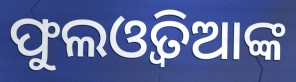
ଫୁଲଓ୍ୱତିଆଙ୍କ